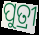
ପୁତ୍ରୀ